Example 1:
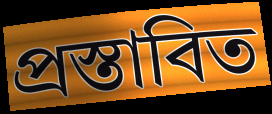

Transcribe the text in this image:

প্রস্তাবিত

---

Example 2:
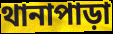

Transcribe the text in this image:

থানাপাড়া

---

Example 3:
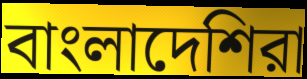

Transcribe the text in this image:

বাংলাদেশিরা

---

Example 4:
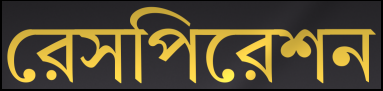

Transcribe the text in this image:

রেসপিরেশন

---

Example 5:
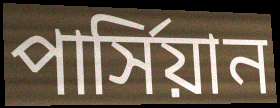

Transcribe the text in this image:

পার্সিয়ান